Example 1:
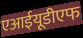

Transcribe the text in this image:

एआईयूडीएफ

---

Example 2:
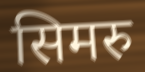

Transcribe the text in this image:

सिमरु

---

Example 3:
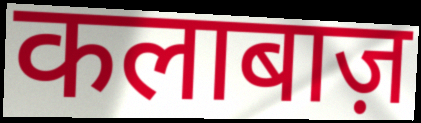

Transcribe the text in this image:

कलाबाज़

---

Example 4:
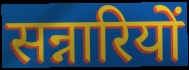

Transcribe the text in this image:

सन्नारियों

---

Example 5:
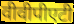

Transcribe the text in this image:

वीवीपीएटी